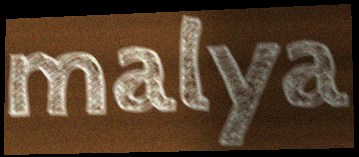
malya